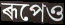
ৰূপেও